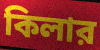
কিলার